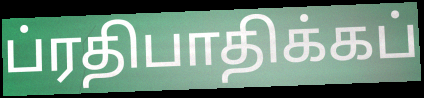
ப்ரதிபாதிக்கப்